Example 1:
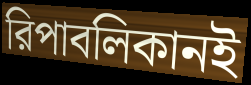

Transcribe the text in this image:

রিপাবলিকানই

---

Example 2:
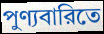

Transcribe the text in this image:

পুণ্যবারিতে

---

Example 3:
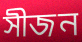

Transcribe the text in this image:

সীজন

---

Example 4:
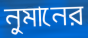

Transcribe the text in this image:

নুমানের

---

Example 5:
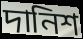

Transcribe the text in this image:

দানিশ